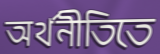
অর্থনীতিতে